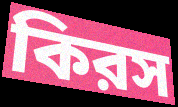
কিরস